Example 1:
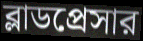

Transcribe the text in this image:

ব্লাডপ্রেসার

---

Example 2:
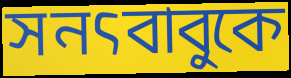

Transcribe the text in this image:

সনৎবাবুকে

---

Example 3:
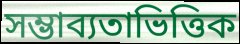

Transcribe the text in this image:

সম্ভাব্যতাভিত্তিক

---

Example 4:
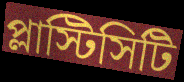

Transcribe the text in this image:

প্লাস্টিসিটি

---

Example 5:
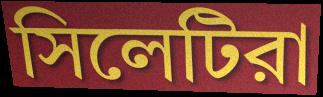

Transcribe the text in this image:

সিলেটিরা